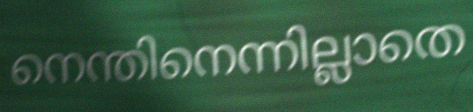
നെന്തിനെന്നില്ലാതെ